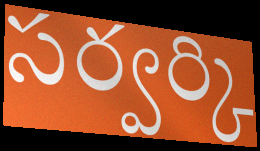
సర్వర్కి